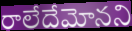
రాలేదేమోనని